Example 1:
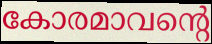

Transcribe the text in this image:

കോരമാവന്റെ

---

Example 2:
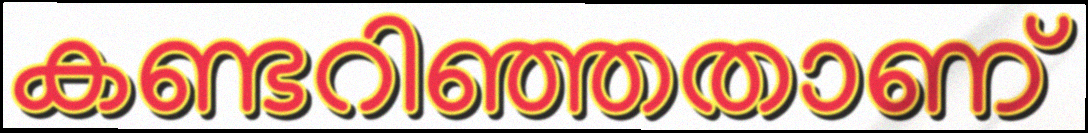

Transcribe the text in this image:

കണ്ടറിഞ്ഞതാണ്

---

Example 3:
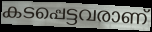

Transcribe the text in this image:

കടപ്പെട്ടവരാണ്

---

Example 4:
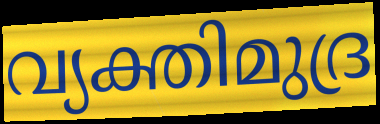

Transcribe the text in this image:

വ്യക്തിമുദ്ര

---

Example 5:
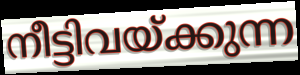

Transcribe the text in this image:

നീട്ടിവയ്ക്കുന്ന